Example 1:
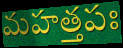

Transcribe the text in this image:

మహత్తపః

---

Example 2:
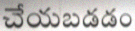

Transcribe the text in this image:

చేయబడడం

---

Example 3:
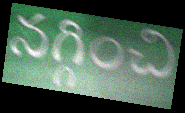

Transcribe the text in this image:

నగ్గించి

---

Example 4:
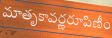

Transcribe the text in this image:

మాతృకావర్ణరూపిణీం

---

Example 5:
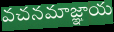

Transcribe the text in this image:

వచనమాజ్ఞాయ